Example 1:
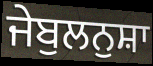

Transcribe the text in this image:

ਜੇਬੁਲਨੁਸ਼ਾ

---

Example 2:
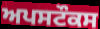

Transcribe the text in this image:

ਅਪਸਟੌਕਸ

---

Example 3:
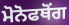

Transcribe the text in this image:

ਮੋਨੋਫਥੋਂਗ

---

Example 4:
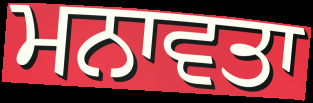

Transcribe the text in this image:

ਮਨਾਵਤਾ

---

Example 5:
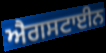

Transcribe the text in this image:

ਐਗਸਟਾਈਨ